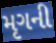
મૃગની